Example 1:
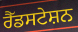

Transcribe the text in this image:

ਰੈੱਡਸਟੇਸ਼ਨ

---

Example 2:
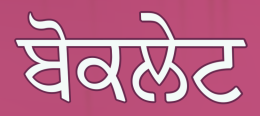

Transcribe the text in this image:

ਬੋਕਲੇਟ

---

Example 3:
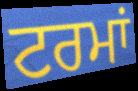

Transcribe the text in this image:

ਟਰਮਾਂ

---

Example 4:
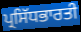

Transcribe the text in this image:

ਪ੍ਰਸਿੱਧਭਾਰਤੀ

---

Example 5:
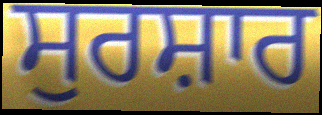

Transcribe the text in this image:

ਸੁਰਸ਼ਾਰ